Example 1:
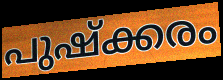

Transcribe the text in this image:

പുഷ്ക്കരം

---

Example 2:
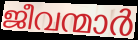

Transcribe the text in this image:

ജീവന്മാർ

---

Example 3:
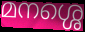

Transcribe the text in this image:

മനശ്ശെ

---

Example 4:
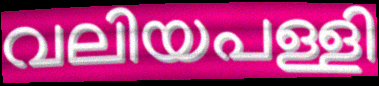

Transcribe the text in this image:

വലിയപള്ളി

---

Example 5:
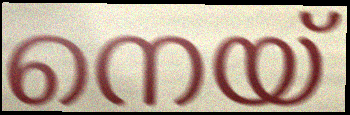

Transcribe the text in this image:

നെയ്